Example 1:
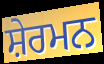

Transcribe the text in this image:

ਸ਼ੇਰਮਨ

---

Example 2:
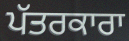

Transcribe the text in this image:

ਪੱਤਰਕਾਰਾ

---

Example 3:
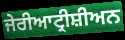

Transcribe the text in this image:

ਜੇਰੀਆਟ੍ਰੀਸ਼ੀਅਨ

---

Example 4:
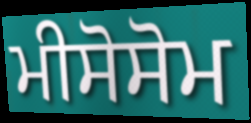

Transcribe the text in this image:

ਮੀਸੋਸੋਮ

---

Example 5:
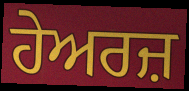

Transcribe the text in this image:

ਹੇਅਰਜ਼